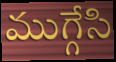
ముగ్గేసి